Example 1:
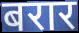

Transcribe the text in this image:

बरार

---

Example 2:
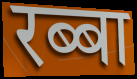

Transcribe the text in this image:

रब्बा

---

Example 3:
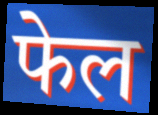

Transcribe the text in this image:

फेल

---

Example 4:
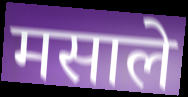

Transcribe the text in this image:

मसाले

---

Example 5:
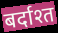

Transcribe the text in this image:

बर्दाश्त